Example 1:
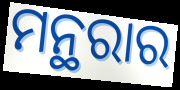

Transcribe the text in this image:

ମନ୍ଥରାର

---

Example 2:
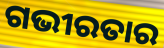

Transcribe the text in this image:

ଗଭୀରତାର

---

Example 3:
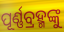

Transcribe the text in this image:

ପୂର୍ଣ୍ଣବ୍ରହ୍ମଙ୍କୁ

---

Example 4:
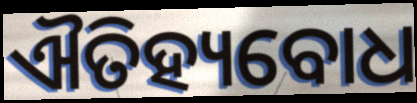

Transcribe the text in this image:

ଐତିହ୍ୟବୋଧ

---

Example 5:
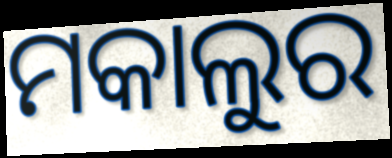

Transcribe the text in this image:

ମକାଲୁର